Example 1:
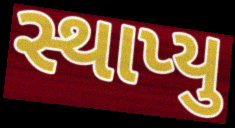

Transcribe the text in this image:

સ્થાપ્યુ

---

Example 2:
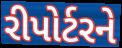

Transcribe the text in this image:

રીપોર્ટરને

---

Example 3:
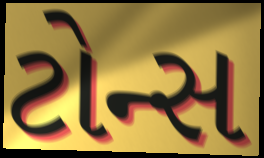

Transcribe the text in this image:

ટોન્સ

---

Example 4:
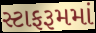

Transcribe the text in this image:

સ્ટાફરૂમમાં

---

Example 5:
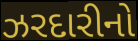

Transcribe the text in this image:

ઝરદારીનો